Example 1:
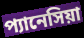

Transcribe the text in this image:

প্যানেসিয়া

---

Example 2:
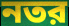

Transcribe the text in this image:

নতর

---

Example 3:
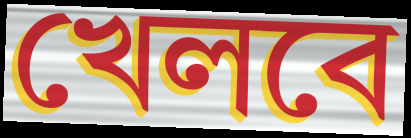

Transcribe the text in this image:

খেলবে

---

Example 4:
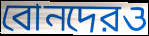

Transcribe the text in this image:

বোনদেরও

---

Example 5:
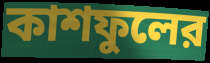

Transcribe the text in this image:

কাশফুলের